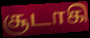
சூடாகி